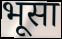
भूसा